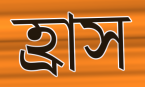
হ্ৰাস